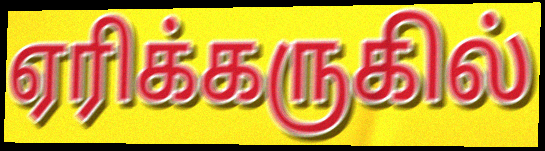
ஏரிக்கருகில்